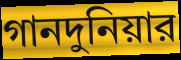
গানদুনিয়ার